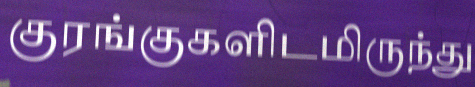
குரங்குகளிடமிருந்து